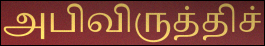
அபிவிருத்திச்